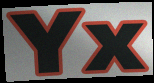
Yx